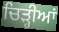
ਚਿੜ੍ਹੀਆਂ